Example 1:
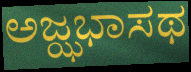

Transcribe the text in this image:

ಅಜ್ಝಭಾಸಥ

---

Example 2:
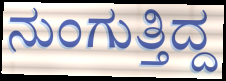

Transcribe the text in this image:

ನುಂಗುತ್ತಿದ್ದ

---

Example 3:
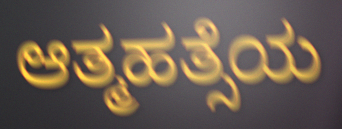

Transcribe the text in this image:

ಆತ್ಮಹತ್ಸೆಯ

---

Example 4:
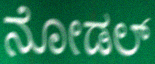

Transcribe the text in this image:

ನೋಡಲ್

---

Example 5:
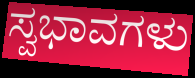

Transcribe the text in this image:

ಸ್ವಭಾವಗಳು